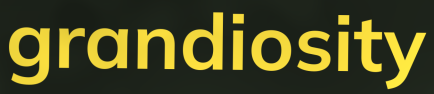
grandiosity